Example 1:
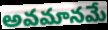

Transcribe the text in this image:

అవమానమే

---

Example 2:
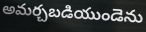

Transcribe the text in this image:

అమర్చబడియుండెను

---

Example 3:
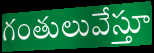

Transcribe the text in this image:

గంతులువేస్తూ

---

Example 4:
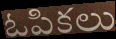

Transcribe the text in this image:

ఓపికలు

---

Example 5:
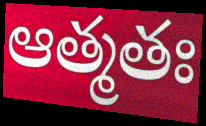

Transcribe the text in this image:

ఆత్మతః